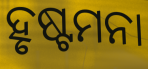
ହୃଷ୍ଟମନା